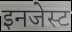
इनजेस्ट